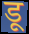
डू